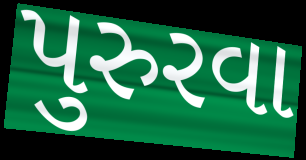
પુરુરવા